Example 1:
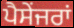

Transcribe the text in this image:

ਪੈਸੇਂਜਰਾਂ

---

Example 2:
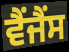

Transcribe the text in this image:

ਵੈਂਜੈਂਸ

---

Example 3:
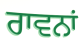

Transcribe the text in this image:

ਰਾਵਨਾਂ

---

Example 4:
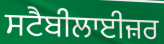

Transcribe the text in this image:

ਸਟੈਬੀਲਾਈਜ਼ਰ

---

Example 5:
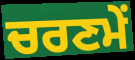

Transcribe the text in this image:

ਚਰਣਮੇਂ